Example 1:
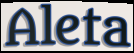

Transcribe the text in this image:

Aleta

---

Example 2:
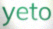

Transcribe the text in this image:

yeto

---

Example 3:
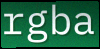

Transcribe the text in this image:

rgba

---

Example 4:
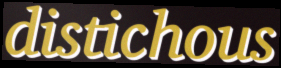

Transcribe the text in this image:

distichous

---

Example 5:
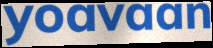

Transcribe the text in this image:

yoavaan